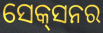
ସେକ୍‌ସନର